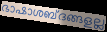
ഭാഷാശബ്ദങ്ങളല്ല